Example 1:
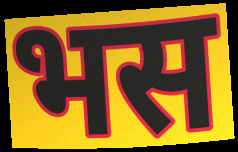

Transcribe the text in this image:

भस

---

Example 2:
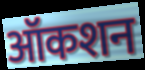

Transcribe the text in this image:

ऑकशन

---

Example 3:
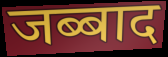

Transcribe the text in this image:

जब्बाद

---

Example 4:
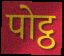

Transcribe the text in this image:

पोट्ठ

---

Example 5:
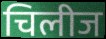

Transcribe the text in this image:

चिलीज